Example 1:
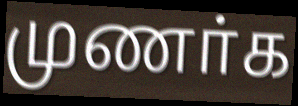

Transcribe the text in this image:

முணர்க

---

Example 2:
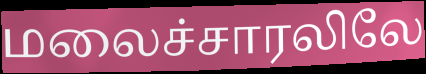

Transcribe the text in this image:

மலைச்சாரலிலே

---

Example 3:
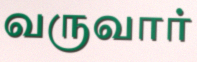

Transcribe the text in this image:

வருவார்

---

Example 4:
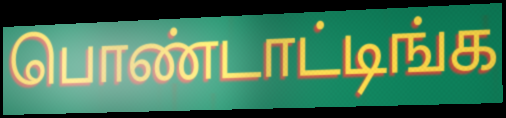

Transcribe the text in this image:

பொண்டாட்டிங்க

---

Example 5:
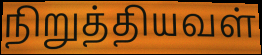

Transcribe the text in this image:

நிறுத்தியவள்